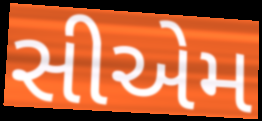
સીએમ